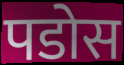
पडोस